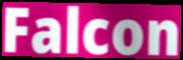
Falcon